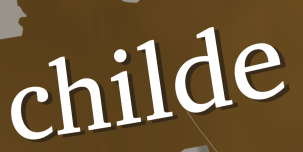
childe